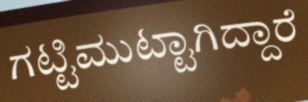
ಗಟ್ಟಿಮುಟ್ಟಾಗಿದ್ದಾರೆ